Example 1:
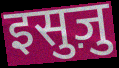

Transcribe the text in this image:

इसुज़ु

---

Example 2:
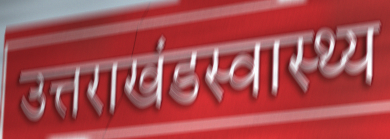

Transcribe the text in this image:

उत्तराखंडस्वास्थ्य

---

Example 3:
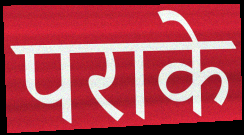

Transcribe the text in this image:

पराके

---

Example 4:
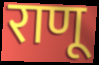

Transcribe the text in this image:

राणू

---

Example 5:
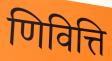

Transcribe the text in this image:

णिवित्ति